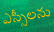
ఎస్సీలను